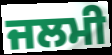
ਜਲਮੀ